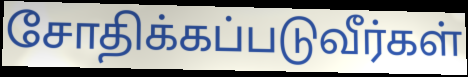
சோதிக்கப்படுவீர்கள்